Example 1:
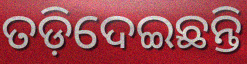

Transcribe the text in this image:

ତଡ଼ିଦେଇଛନ୍ତି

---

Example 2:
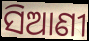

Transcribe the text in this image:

ସିଆଣୀ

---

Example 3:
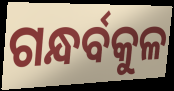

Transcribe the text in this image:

ଗନ୍ଧର୍ବକୁଳ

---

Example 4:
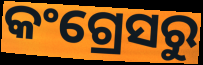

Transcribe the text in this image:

କଂଗ୍ରେସରୁ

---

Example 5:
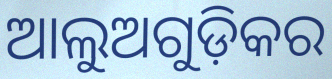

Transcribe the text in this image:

ଆଲୁଅଗୁଡ଼ିକର